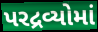
પરદ્રવ્યોમાં